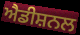
ਐਡੀਸ਼ਨਲ